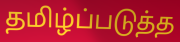
தமிழ்ப்படுத்த